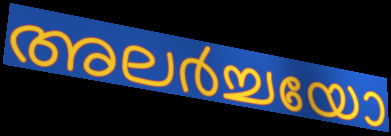
അലർച്ചയോ